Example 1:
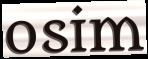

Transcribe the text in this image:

osim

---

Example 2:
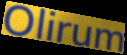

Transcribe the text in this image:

Olirum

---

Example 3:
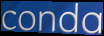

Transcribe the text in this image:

conda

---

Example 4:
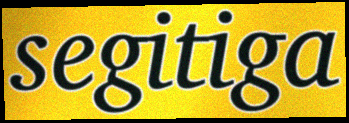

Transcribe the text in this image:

segitiga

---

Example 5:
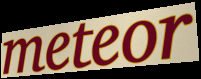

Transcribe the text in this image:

meteor